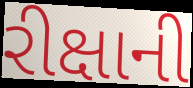
રીક્ષાની